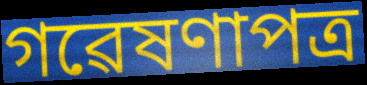
গৱেষণাপত্ৰ